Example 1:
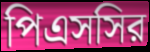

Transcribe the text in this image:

পিএসসির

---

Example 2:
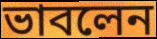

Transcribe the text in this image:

ভাবলেন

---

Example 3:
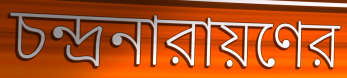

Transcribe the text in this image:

চন্দ্রনারায়ণের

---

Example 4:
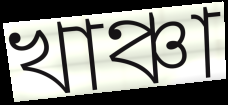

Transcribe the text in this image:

খাঞ্চা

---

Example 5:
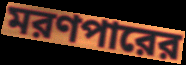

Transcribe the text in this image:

মরণপারের